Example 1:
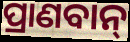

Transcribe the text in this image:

ପ୍ରାଣବାନ୍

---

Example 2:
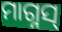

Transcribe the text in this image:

ମାଗ୍ନସ୍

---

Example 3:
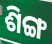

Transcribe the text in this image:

ଶିଙ୍ଗ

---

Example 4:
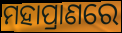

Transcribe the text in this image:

ମହାପ୍ରାଣରେ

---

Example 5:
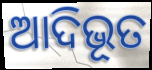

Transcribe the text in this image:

ଆଦିଭୂତ